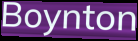
Boynton